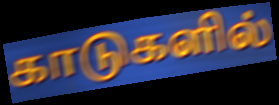
காடுகளில்